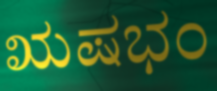
ಋಷಭಂ